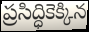
ప్రసిద్ధికెక్కిన